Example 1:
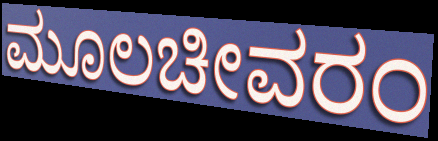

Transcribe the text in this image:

ಮೂಲಚೀವರಂ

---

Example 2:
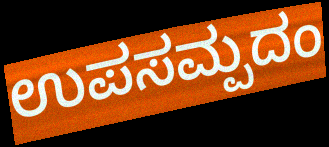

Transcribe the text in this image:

ಉಪಸಮ್ಪದಂ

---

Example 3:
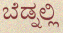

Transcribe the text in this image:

ಬೆಡ್ನಲ್ಲಿ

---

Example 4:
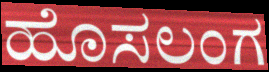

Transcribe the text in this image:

ಹೊಸಲಂಗ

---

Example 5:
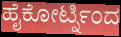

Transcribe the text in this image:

ಹೈಕೋರ್ಟ್ನಿಂದ